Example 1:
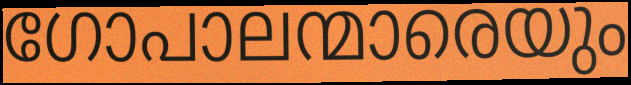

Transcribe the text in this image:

ഗോപാലന്മാരെയും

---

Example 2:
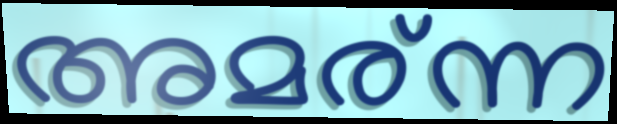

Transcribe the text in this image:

അമര്ന്ന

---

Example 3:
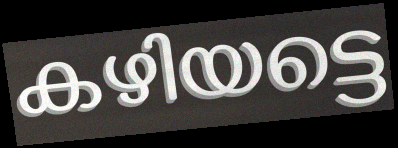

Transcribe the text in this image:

കഴിയട്ടെ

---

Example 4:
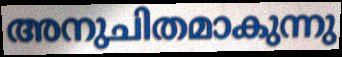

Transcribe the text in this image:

അനുചിതമാകുന്നു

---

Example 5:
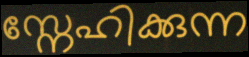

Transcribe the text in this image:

സ്നേഹിക്കുന്ന